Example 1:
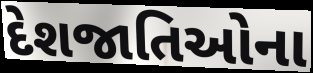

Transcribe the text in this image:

દેશજાતિઓના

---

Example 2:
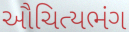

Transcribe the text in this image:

ઔચિત્યભંગ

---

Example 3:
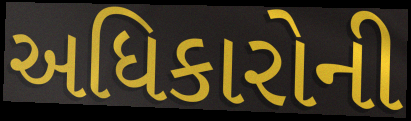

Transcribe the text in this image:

અધિકારોની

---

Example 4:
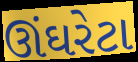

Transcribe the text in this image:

ઊંઘરેટા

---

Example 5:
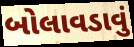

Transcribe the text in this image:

બોલાવડાવું